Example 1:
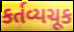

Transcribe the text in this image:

કર્તવ્યચૂક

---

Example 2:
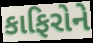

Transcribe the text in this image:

કાફિરોને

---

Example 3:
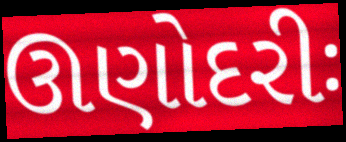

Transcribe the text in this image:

ઊણોદરીઃ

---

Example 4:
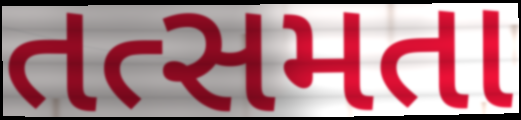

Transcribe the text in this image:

તત્સમતા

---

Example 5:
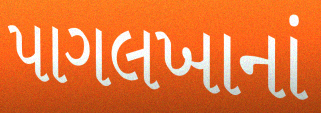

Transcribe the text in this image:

પાગલખાનાં